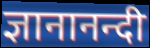
ज्ञानानन्दी